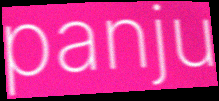
panju